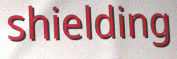
shielding